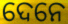
ଦେନେ